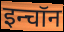
इन्चॉन